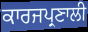
ਕਾਰਜਪ੍ਰਣਾਲੀ